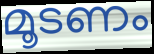
മൂടണം